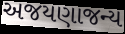
અજયણાજન્ય